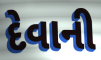
દેવાની